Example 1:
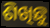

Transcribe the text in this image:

ଶିଖିଛୁ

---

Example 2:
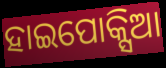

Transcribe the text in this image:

ହାଇପୋକ୍ସିଆ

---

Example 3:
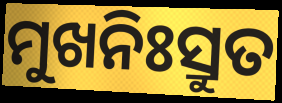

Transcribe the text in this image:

ମୁଖନିଃସ୍ରୁତ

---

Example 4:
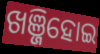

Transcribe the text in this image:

ଖଞ୍ଜିହୋଇ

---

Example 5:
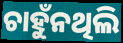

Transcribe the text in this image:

ଚାହୁଁନଥିଲି